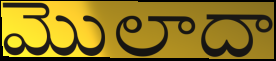
మొలాదా